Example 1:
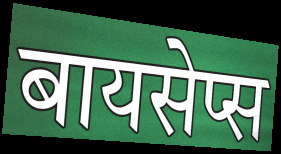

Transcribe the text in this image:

बायसेप्स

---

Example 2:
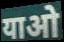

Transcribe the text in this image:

याओ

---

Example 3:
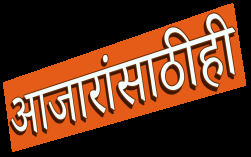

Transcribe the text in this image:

आजारांसाठीही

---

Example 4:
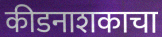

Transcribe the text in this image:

कीडनाशकाचा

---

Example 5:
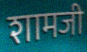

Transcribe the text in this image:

शामजी